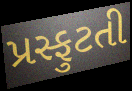
પ્રસ્ફુટતી